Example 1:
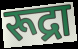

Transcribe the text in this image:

रूद्रा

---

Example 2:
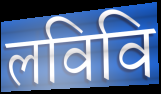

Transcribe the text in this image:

लविवि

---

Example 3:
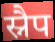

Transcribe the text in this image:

स्नैप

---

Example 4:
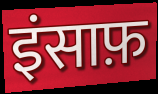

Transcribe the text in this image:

इंसाफ़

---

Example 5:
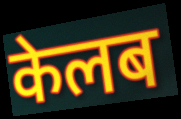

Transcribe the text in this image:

केलब